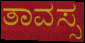
ತಾವಸ್ಸ